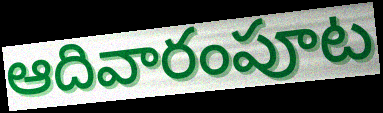
ఆదివారంపూట